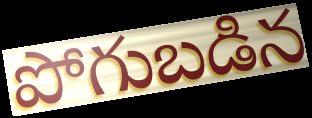
పోగుబడిన